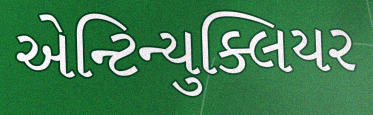
એન્ટિન્યુક્લિયર